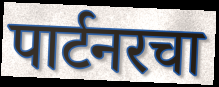
पार्टनरचा